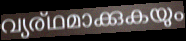
വ്യര്ഥമാക്കുകയും